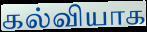
கல்வியாக